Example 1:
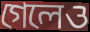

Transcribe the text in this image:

গেলেও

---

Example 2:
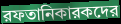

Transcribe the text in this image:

রফতানিকারকদের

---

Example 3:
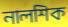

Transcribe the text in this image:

নালশিক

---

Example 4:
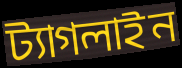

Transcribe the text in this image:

ট্যাগলাইন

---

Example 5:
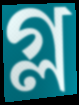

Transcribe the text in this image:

গ্ল